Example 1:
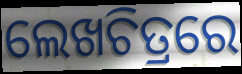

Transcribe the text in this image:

ଲେଖଚିତ୍ରରେ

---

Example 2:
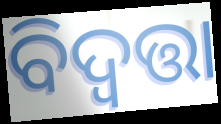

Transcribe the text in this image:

ବିଦ୍ୱତ୍ତା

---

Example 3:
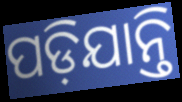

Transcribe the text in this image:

ପଡ଼ିଯାନ୍ତି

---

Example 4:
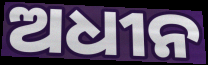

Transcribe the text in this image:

ଅଧୀନ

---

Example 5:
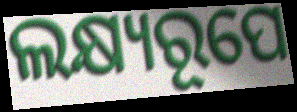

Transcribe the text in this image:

ଲକ୍ଷ୍ୟରୂପେ